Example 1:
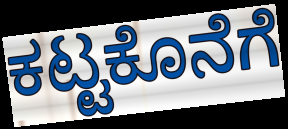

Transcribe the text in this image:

ಕಟ್ಟಕೊನೆಗೆ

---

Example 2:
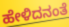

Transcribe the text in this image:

ಹೇಳಿದನಂತೆ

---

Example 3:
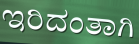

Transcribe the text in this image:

ಇರಿದಂತಾಗಿ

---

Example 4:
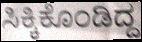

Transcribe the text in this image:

ಸಿಕ್ಕಿಕೊಂಡಿದ್ದ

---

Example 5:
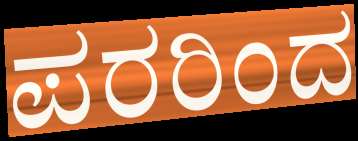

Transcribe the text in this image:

ಪರರಿಂದ